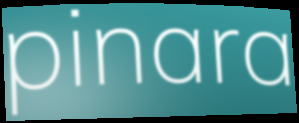
pinara